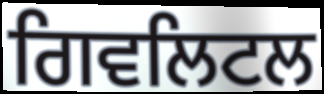
ਗਿਵਲਿਟਲ